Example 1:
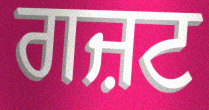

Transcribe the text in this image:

ਗਜ਼ਟ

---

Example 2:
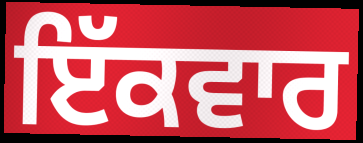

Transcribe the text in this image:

ਇੱਕਵਾਰ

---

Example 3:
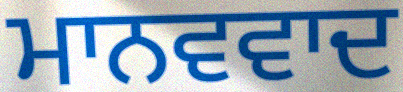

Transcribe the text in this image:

ਮਾਨਵਵਾਦ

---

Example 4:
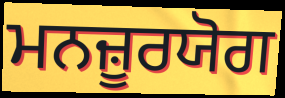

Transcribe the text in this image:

ਮਨਜ਼ੂਰਯੋਗ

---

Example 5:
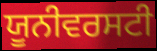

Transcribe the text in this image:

ਯੂਨੀਵਰਸਟੀ